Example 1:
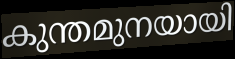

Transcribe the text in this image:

കുന്തമുനയായി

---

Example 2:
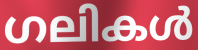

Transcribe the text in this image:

ഗലികൾ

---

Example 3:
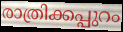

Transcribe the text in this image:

രാത്രിക്കപ്പുറം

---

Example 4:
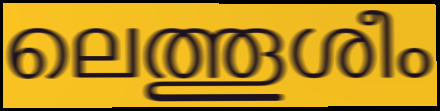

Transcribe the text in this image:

ലെത്തൂശീം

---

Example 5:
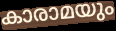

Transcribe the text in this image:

കാരാമയും